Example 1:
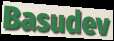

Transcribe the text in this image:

Basudev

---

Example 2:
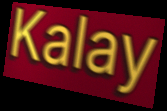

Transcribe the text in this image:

Kalay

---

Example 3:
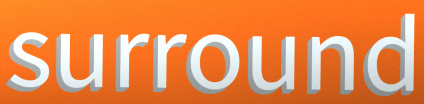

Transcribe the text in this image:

surround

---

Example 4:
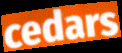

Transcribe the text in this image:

cedars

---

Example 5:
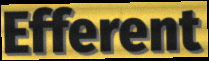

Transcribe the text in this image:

Efferent